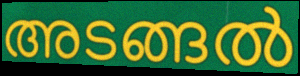
അടങ്ങൽ